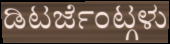
ಡಿಟರ್ಜೆಂಟ್ಗಳು